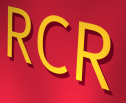
RCR